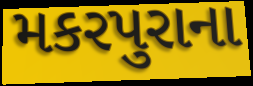
મકરપુરાના